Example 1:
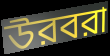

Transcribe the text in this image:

উরবরা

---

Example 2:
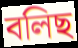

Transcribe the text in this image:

বলিছ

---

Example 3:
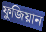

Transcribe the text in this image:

ফুজিয়ান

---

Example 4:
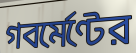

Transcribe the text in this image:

গবর্মেণ্টের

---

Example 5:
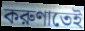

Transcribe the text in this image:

করুণাতেই